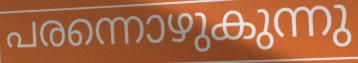
പരന്നൊഴുകുന്നു